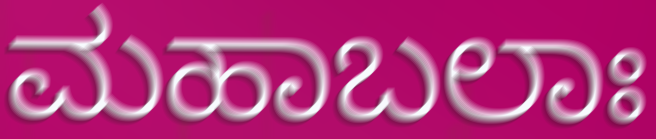
ಮಹಾಬಲಾಃ